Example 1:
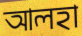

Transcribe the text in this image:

আলহা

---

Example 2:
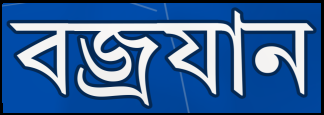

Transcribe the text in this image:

বজ্ৰযান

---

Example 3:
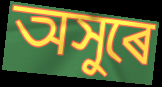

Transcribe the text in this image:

অসুৰে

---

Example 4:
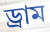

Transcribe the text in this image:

ড্ৰাম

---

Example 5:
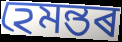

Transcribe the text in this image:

হেমন্তৰ